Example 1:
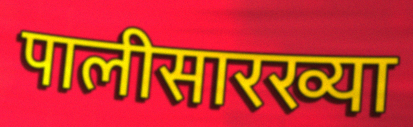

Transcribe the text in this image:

पालीसारख्या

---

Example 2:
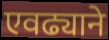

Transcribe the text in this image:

एवढ्याने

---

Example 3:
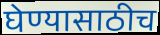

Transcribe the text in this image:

घेण्यासाठीच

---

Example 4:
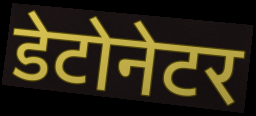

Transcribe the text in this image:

डेटोनेटर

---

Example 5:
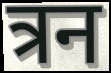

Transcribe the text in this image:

त्रन